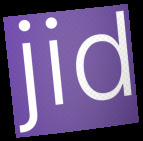
jid